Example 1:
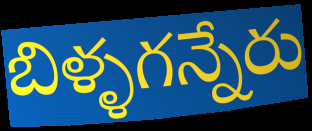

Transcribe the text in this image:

బిళ్ళగన్నేరు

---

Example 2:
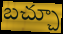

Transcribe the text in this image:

బచ్చూ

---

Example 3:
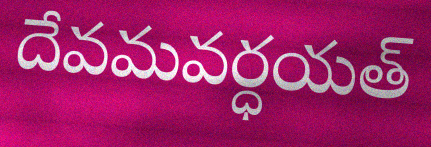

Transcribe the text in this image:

దేవమవర్ధయత్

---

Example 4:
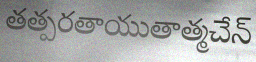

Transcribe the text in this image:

తత్పరతాయుతాత్మచేన్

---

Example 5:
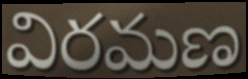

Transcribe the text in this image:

విరమణ